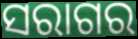
ସରାଗର